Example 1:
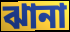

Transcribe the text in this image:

ঝানা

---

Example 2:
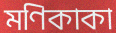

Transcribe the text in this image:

মণিকাকা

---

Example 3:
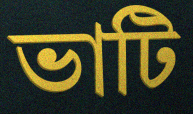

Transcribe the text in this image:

ভাটি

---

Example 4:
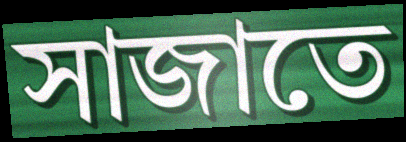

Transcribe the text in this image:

সাজাতে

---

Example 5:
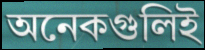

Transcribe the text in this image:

অনেকগুলিই